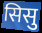
सिसु